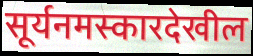
सूर्यनमस्कारदेखील